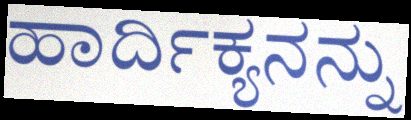
ಹಾರ್ದಿಕ್ಯನನ್ನು